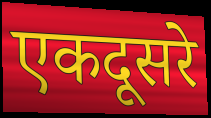
एकदूसरे